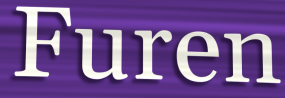
Furen